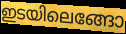
ഇടയിലെങ്ങോ